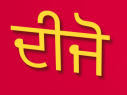
ਦੀਜੋ